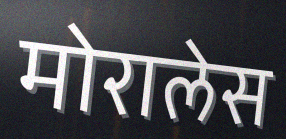
मोरालेस